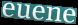
euene